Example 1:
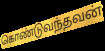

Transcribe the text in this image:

கொண்டுவந்தவன்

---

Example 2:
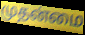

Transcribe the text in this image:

முதன்மை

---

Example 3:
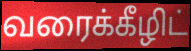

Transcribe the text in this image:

வரைக்கீழிட்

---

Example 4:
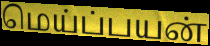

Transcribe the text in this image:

மெய்ப்பயன்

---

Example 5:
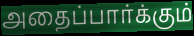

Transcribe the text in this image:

அதைப்பார்க்கும்